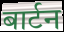
बार्टन